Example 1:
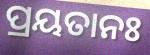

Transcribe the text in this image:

ପ୍ରୟତାନଃ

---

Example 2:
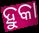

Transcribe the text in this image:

ହୁକା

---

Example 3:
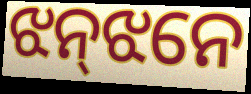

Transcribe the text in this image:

ଝନ୍‌ଝନେ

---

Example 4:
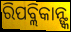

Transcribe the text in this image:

ରିପବ୍ଲିକାନ୍ଙ୍କ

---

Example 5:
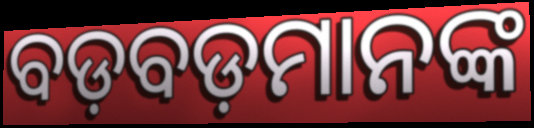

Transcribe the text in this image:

ବଡ଼ବଡ଼ମାନଙ୍କ